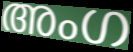
അംഗ